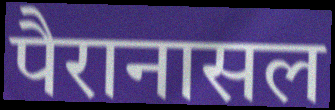
पैरानासल